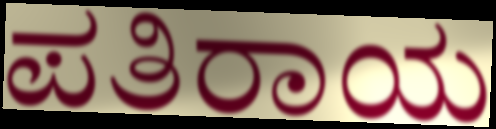
ಪತಿರಾಯ